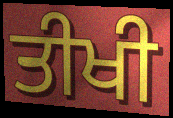
ਤੀਖੀ